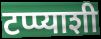
टप्प्याशी